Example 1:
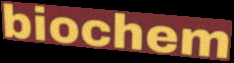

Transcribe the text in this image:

biochem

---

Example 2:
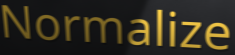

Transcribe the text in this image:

Normalize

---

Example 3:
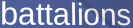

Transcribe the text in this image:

battalions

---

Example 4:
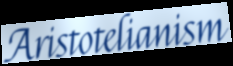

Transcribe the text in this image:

Aristotelianism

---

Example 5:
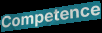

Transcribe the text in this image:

Competence